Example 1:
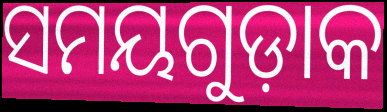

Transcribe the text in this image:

ସମୟଗୁଡ଼ାକ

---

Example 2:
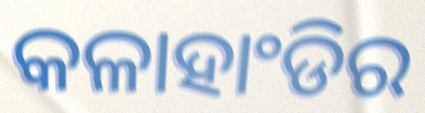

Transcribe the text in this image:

କଳାହାଂଡିର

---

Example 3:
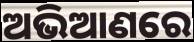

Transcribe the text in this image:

ଅଭିଆଣରେ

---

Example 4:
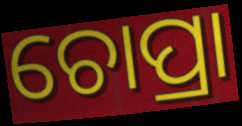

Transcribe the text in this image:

ଚୋପ୍ରା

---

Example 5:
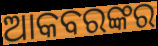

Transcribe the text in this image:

ଆକବରଙ୍କର